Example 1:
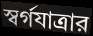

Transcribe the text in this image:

স্বর্গযাত্রার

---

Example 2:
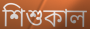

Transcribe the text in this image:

শিশুকাল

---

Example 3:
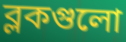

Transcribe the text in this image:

ব্লকগুলো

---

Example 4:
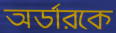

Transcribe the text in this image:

অর্ডারকে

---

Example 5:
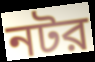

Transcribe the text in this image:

নটর